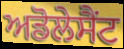
ਅਡੋਲੇਸੈਂਟ